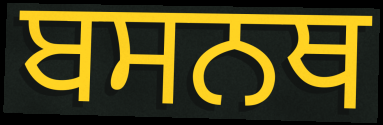
ਬਸਨਥ